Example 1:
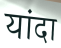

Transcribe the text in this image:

यांदा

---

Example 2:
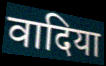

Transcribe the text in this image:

वादिया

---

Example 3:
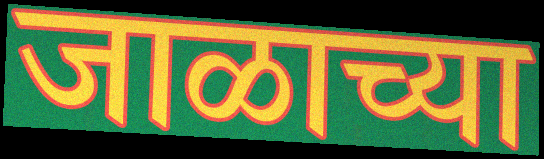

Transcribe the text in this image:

जाळाच्या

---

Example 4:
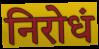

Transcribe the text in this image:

निरोधं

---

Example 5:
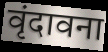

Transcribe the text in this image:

वृंदावना